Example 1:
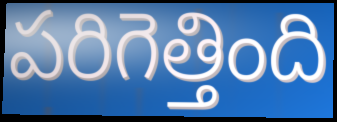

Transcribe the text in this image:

పరిగెత్తింది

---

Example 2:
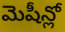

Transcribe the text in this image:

మెషీన్లో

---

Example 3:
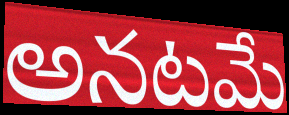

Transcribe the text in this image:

అనటమే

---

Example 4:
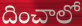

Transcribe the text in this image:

దించాలో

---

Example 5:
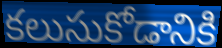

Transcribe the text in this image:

కలుసుకోడానికి